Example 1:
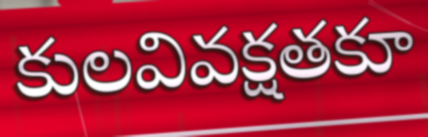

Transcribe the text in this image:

కులవివక్షతకూ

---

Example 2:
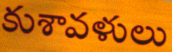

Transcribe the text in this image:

కుశావళులు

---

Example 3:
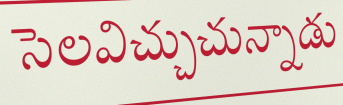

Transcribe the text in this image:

సెలవిచ్చుచున్నాడు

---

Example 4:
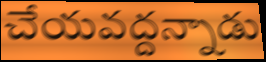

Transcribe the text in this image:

చేయవద్దన్నాడు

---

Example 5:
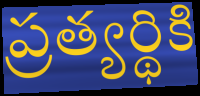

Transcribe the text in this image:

ప్రత్యర్థికి